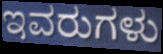
ಇವರುಗಳು